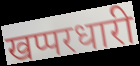
खप्परधारी